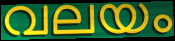
വലയം